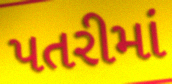
પતરીમાં